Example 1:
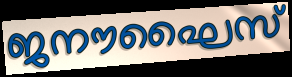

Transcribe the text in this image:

ജനൗഘൈസ്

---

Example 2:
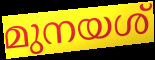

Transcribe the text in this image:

മുനയശ്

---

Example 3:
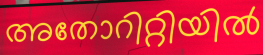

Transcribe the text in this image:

അതോറിറ്റിയിൽ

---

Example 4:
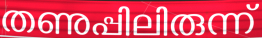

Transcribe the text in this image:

തണുപ്പിലിരുന്ന്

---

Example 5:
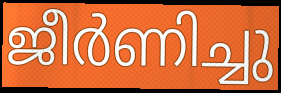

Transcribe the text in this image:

ജീർണിച്ചു